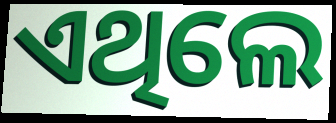
ଏଥିଲେ